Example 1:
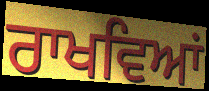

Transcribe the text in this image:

ਰਾਖਵਿਆਂ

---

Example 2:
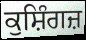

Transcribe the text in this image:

ਕੁਸ਼ਿੰਗਜ਼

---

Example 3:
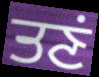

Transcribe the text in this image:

ਤਣਂ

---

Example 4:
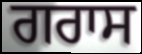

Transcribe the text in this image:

ਗਰਾਸ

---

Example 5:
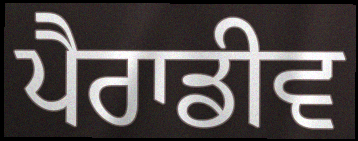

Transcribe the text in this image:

ਪੈਰਾਡੀਵ